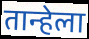
तान्हेला